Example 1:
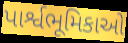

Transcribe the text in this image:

પાર્શ્વભૂમિકાઓ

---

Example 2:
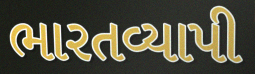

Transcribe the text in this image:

ભારતવ્યાપી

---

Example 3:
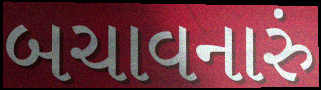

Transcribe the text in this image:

બચાવનારું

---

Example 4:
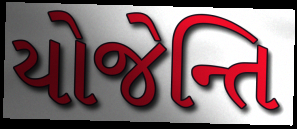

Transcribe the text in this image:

યોજેન્તિ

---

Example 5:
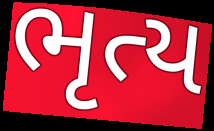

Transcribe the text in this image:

ભૃત્ય